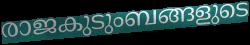
രാജകുടുംബങ്ങളുടെ